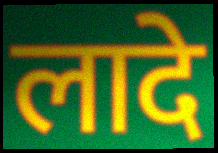
लादे